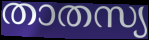
താതസ്യ